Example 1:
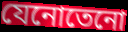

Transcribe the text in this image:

যেনোতেনো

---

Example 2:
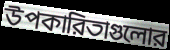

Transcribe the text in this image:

উপকারিতাগুলোর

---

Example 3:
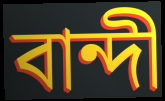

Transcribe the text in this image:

বান্দী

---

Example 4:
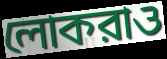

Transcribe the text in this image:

লোকরাও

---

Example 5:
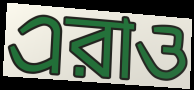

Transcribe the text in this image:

এরাও